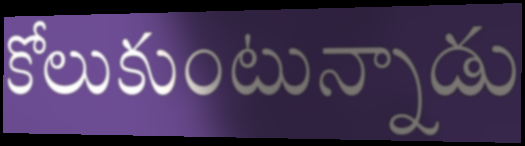
కోలుకుంటున్నాడు